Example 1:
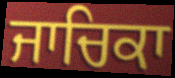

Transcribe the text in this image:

ਜਾਚਿਕਾ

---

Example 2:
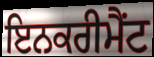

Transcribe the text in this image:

ਇਨਕਰੀਮੈਂਟ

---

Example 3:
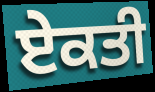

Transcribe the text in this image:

ਏਕਤੀ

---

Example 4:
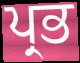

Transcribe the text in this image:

ਪ੍ਰਭ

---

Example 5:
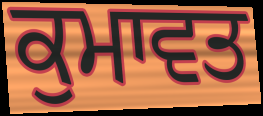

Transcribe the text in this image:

ਕੁਮਾਵਤ